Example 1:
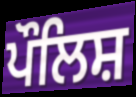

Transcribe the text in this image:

ਪੌਲਿਸ਼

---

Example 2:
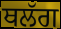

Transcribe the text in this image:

ਥਲੱਗ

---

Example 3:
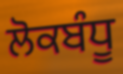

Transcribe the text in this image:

ਲੋਕਬੰਧੂ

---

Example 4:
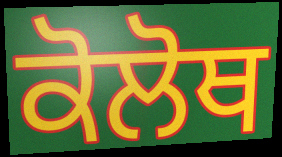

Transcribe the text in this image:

ਕੋਲੋਥ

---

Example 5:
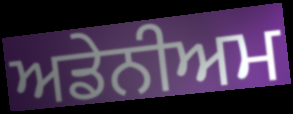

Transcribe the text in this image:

ਅਡੇਨੀਅਮ